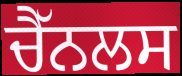
ਚੈੱਨਲਸ